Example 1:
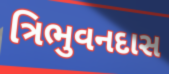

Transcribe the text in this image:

ત્રિભુવનદાસ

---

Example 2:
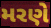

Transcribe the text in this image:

મરણે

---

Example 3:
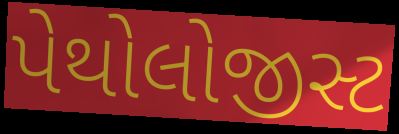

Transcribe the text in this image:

પેથોલોજીસ્ટ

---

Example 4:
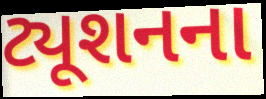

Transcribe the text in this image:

ટ્યૂશનના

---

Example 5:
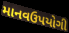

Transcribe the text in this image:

માનવઉપયોગી